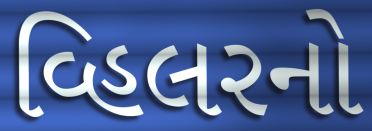
વ્હિલરનો